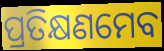
ପ୍ରତିକ୍ଷଣମେବ